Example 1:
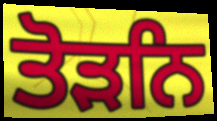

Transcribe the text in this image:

ਤੋੜਨਿ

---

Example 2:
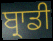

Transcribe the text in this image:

ਬ੍ਰਾਡੀ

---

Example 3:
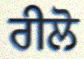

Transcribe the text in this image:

ਰੀਲੋ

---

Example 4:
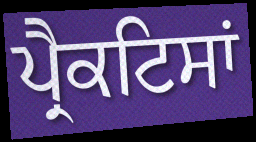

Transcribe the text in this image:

ਪ੍ਰੈਕਟਿਸਾਂ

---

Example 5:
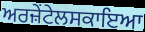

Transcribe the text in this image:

ਅਰਜ਼ੇਂਟੇਲਸਕਾਇਆ